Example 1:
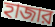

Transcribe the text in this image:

হাজার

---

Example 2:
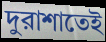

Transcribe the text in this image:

দুরাশাতেই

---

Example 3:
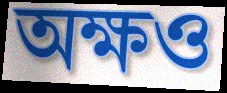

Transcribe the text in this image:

অক্ষও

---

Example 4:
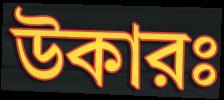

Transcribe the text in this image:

উকারঃ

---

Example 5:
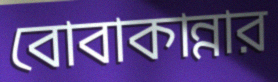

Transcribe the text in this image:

বোবাকান্নার